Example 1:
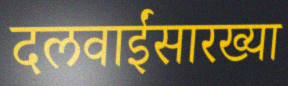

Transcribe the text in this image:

दलवाईंसारख्या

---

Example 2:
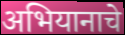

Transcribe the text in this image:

अभियानाचे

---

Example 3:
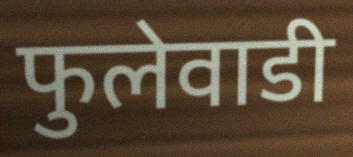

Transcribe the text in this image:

फुलेवाडी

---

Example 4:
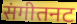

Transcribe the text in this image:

संगीतनट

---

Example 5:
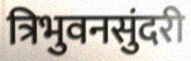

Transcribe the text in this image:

त्रिभुवनसुंदरी